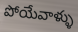
పోయేవాళ్ళు